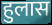
हुलास